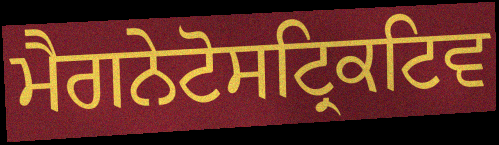
ਮੈਗਨੇਟੋਸਟ੍ਰਿਕਟਿਵ